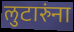
लुटारुंना